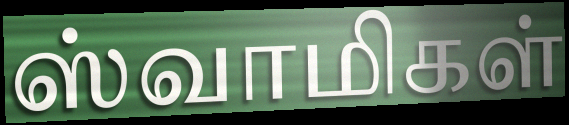
ஸ்வாமிகள்